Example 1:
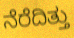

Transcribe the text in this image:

ನೆರೆದಿತ್ತು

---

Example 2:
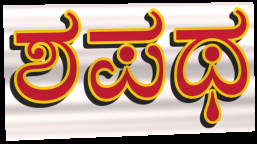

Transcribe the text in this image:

ಶಪಥ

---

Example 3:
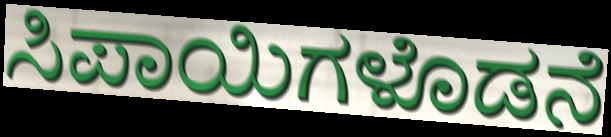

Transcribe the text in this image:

ಸಿಪಾಯಿಗಳೊಡನೆ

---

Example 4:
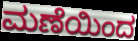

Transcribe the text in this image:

ಮಣೆಯಿಂದ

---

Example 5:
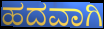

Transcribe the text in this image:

ಹದವಾಗಿ